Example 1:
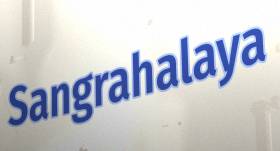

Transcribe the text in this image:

Sangrahalaya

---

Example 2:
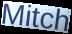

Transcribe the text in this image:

Mitch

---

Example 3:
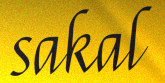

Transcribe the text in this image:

sakal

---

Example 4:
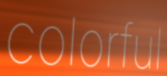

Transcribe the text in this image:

colorful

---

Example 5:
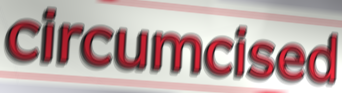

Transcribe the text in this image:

circumcised